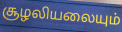
சூழலியலையும்